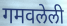
गमवलेली